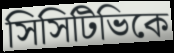
সিসিটিভিকে